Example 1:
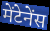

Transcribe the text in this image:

मेंटेनेंस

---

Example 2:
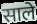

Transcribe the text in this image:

साले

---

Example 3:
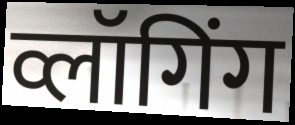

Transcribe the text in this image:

व्लॉगिंग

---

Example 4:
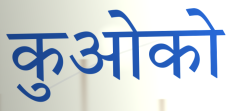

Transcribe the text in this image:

कुओको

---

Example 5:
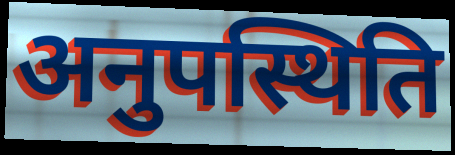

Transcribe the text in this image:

अनुपस्थिति